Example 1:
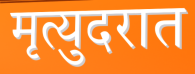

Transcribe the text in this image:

मृत्युदरात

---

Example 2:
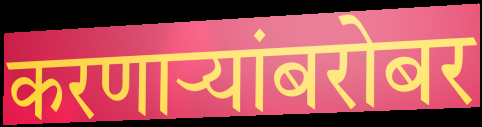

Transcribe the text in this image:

करणार्‍यांबरोबर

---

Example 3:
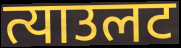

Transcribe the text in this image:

त्याउलट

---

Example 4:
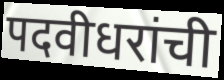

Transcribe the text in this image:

पदवीधरांची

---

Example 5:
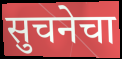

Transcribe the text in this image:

सुचनेचा